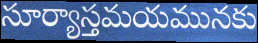
సూర్యాస్తమయమునకు